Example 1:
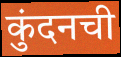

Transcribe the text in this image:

कुंदनची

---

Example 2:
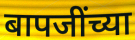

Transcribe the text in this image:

बापजींच्या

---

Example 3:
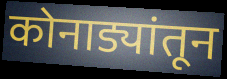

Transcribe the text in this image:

कोनाड्यांतून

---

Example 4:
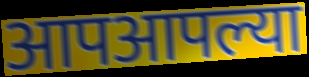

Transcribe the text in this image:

आपआपल्या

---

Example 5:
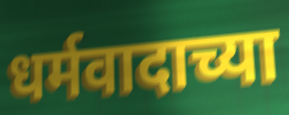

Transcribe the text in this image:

धर्मवादाच्या